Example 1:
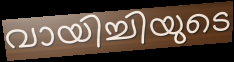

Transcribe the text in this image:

വായിച്ചിയുടെ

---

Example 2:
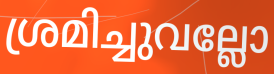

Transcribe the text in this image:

ശ്രമിച്ചുവല്ലോ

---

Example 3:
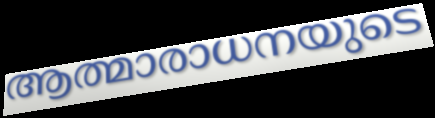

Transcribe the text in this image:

ആത്മാരാധനയുടെ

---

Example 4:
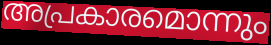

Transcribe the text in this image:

അപ്രകാരമൊന്നും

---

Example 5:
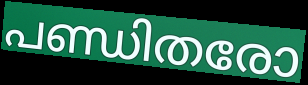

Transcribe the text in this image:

പണ്ഡിതരോ